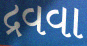
દ્રવવા